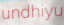
undhiyu